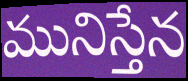
మునిస్తేన